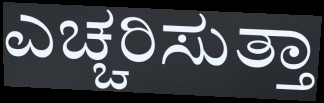
ಎಚ್ಚರಿಸುತ್ತಾ